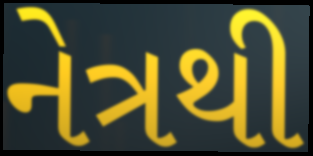
નેત્રથી